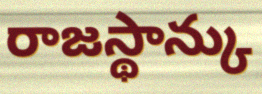
రాజస్థాన్కు